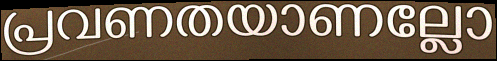
പ്രവണതയാണല്ലോ